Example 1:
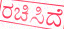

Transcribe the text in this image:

ರಚಿಸಿದೆ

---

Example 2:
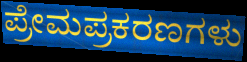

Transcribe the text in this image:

ಪ್ರೇಮಪ್ರಕರಣಗಳು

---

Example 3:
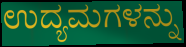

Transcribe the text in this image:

ಉದ್ಯಮಗಳನ್ನು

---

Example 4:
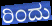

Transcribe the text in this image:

ರಿಂದು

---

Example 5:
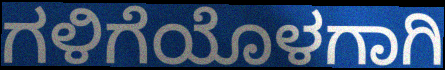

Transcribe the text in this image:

ಗಳಿಗೆಯೊಳಗಾಗಿ